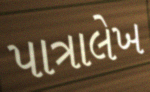
પાત્રાલેખ